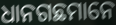
ଧାନଗଛମାନେ